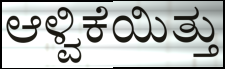
ಆಳ್ವಿಕೆಯಿತ್ತು